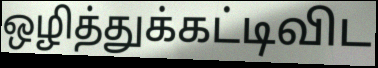
ஒழித்துக்கட்டிவிட